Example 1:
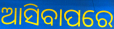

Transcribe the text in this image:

ଆସିବାପରେ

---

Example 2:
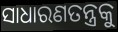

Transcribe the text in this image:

ସାଧାରଣତନ୍ତ୍ରକୁ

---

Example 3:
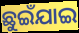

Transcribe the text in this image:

ଛୁଇଁଯାଇ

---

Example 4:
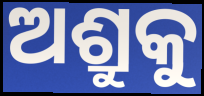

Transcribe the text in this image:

ଅଶ୍ରୁକୁ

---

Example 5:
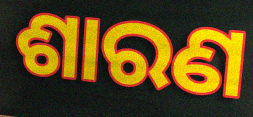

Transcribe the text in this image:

ଶାରଣ